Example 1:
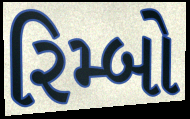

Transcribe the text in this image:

રિમ્બો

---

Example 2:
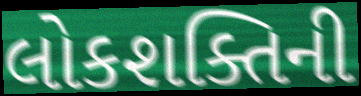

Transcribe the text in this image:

લોકશક્તિની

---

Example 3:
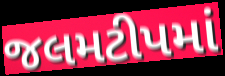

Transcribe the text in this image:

જલમટીપમાં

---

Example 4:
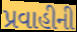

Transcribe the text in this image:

પ્રવાહીની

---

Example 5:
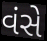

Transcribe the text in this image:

વંસે